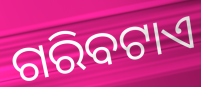
ଗରିବଟାଏ